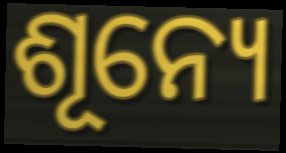
ଶୂନ୍ୟେ